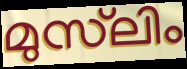
മുസ്‌ലിം